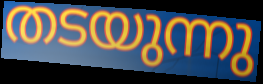
തടയുന്നു